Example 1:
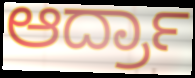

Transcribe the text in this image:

ಆರ್ದ್ರಾ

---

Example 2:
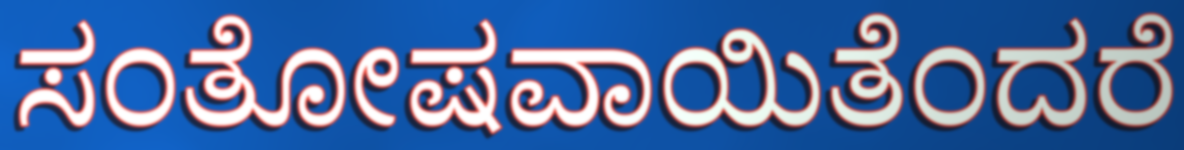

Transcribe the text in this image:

ಸಂತೋಷವಾಯಿತೆಂದರೆ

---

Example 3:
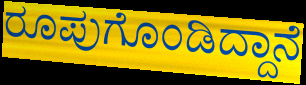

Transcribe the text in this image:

ರೂಪುಗೊಂಡಿದ್ದಾನೆ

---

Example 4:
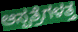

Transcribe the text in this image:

ಆಸ್ಪತ್ರೆಗಳತ್ತ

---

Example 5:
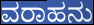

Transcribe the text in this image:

ವರಾಹನು